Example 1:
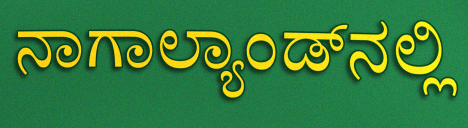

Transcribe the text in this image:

ನಾಗಾಲ್ಯಾಂಡ್‌ನಲ್ಲಿ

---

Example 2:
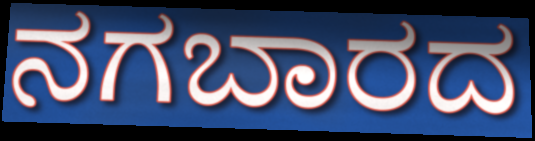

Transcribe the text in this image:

ನಗಬಾರದ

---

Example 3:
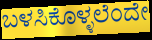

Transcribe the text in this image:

ಬಳಸಿಕೊಳ್ಳಲೆಂದೇ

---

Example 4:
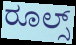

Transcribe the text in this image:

ರೂಲ್ಸ್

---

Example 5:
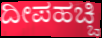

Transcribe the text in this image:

ದೀಪಹಚ್ಚಿ